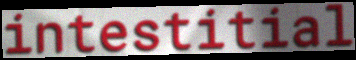
intestitial